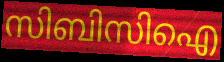
സിബിസിഐ